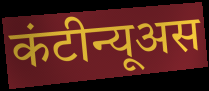
कंटीन्यूअस